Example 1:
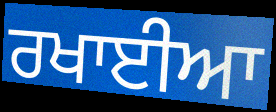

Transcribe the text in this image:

ਰਖਾਈਆ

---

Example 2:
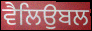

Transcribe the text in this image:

ਵੈਲਿਉਬਲ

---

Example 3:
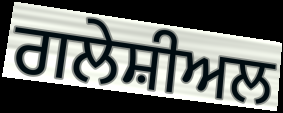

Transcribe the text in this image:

ਗਲੇਸ਼ੀਅਲ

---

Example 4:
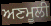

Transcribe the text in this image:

ਅਣਮੂਲੀ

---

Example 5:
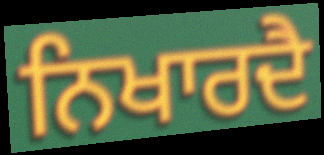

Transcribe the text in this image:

ਨਿਖਾਰਦੈ